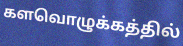
களவொழுக்கத்தில்